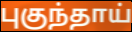
புகுந்தாய்